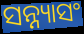
ସନ୍ନ୍ୟାସଂ